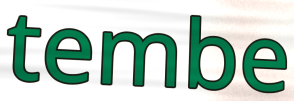
tembe